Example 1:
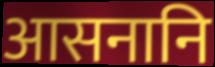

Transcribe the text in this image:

आसनानि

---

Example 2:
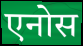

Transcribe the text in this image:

एनोस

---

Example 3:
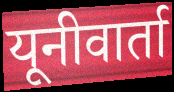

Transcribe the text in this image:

यूनीवार्ता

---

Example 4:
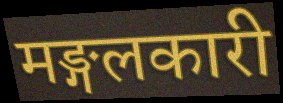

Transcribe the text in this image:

मङ्गलकारी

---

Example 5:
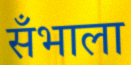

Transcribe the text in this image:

सँभाला